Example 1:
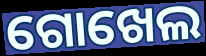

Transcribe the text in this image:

ଗୋଖେଲ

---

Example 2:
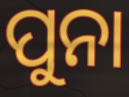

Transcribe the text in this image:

ପୁନା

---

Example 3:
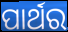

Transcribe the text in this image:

ପାର୍ଥର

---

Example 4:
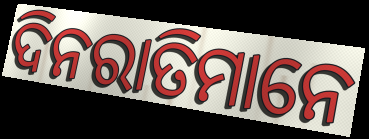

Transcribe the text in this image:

ଦିନରାତିମାନେ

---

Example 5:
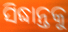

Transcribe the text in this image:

ସିଦ୍ଧାନ୍ତକୁ